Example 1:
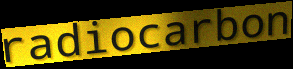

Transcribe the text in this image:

radiocarbon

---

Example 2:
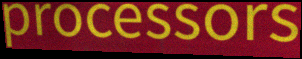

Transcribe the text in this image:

processors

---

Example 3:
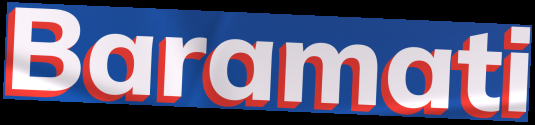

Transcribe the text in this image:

Baramati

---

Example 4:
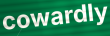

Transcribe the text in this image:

cowardly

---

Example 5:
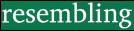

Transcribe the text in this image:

resembling